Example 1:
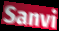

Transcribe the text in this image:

Sanvi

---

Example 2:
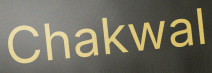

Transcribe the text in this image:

Chakwal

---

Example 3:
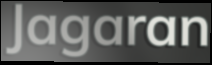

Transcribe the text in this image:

Jagaran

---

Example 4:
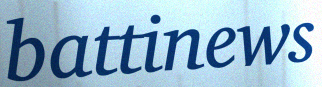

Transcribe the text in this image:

battinews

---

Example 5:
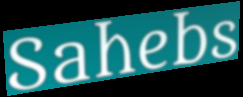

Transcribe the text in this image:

Sahebs